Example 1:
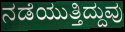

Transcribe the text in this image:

ನಡೆಯುತ್ತಿದ್ದುವು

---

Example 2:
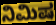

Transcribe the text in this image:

ನಿಮಿಷ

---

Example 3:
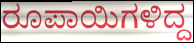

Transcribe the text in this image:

ರೂಪಾಯಿಗಳಿದ್ದ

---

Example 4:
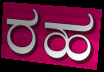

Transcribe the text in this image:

ರಹ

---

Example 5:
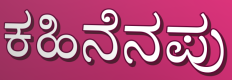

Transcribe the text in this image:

ಕಹಿನೆನಪು